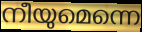
നീയുമെന്നെ